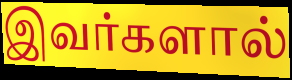
இவர்களால்